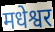
मधेश्वर